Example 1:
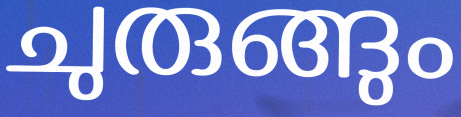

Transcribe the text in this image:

ചുരുങ്ങും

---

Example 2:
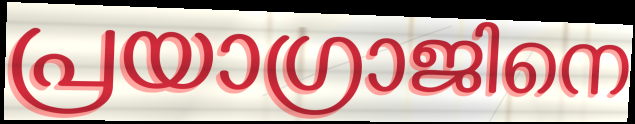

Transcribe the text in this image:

പ്രയാഗ്രാജിനെ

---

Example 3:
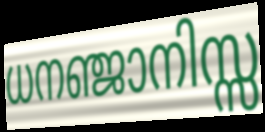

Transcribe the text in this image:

ധനഞ്ജാനിസ്സ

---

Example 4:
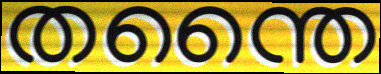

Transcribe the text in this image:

തന്തൈ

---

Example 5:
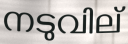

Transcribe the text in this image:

നടുവില്